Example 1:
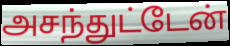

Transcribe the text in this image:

அசந்துட்டேன்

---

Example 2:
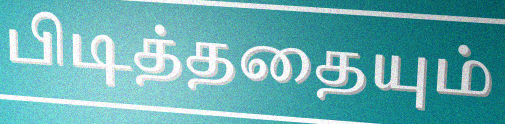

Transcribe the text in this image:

பிடித்ததையும்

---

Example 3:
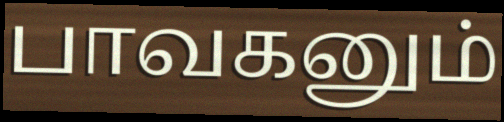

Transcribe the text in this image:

பாவகனும்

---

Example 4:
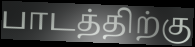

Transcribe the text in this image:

பாடத்திற்கு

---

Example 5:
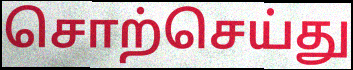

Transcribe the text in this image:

சொற்செய்து